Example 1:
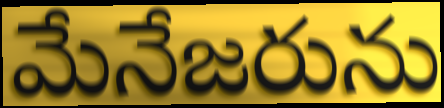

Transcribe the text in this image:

మేనేజరును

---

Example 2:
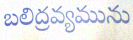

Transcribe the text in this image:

బలిద్రవ్యమును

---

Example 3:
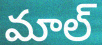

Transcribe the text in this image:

మాల్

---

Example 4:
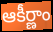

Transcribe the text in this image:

ఆకీర్ణాం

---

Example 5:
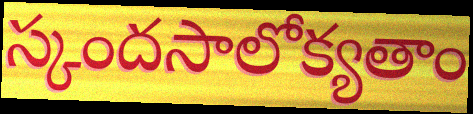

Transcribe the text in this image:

స్కందసాలోక్యతాం